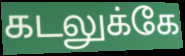
கடலுக்கே